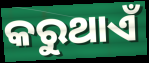
କରୁଥାଏଁ